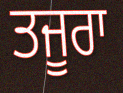
ਤਜੂਰਾ